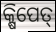
କ୍ଷିପେତ୍